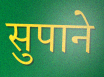
सुपाने